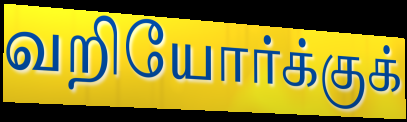
வறியோர்க்குக்